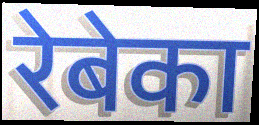
रेबेका